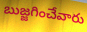
బుజ్జగించేవారు